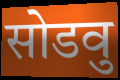
सोडवु